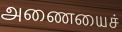
அணையைச்